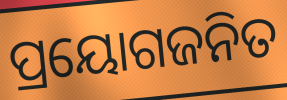
ପ୍ରୟୋଗଜନିତ